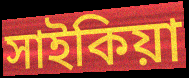
সাইকিয়া